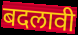
बदलावी